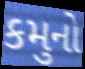
કમુનો